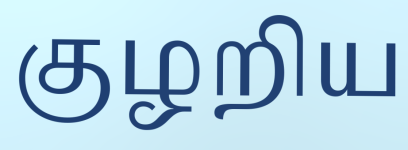
குழறிய